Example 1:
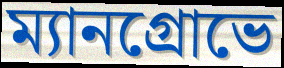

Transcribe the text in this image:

ম্যানগ্রোভে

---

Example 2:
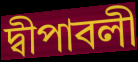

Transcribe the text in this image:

দ্বীপাবলী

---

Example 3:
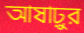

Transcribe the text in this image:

আষাঢ়ুর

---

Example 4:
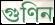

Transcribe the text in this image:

গুণিন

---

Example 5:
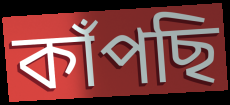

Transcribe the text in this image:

কাঁপছি